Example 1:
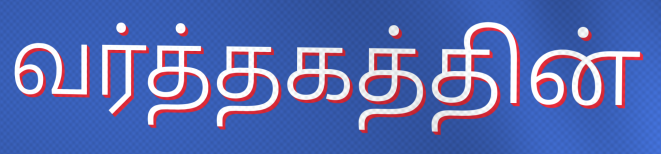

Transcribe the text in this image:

வர்த்தகத்தின்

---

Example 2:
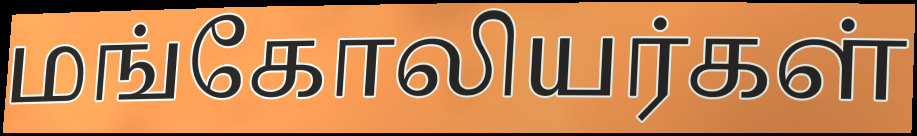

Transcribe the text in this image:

மங்கோலியர்கள்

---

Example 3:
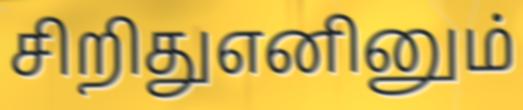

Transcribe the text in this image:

சிறிதுஎனினும்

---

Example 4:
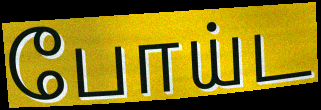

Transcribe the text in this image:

போய்ட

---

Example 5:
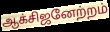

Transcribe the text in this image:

ஆக்சிஜனேற்றம்